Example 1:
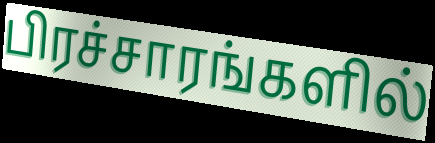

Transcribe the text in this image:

பிரச்சாரங்களில்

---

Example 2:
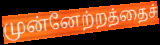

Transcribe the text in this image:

முன்னேற்றத்தைச்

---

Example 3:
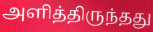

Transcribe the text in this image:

அளித்திருந்தது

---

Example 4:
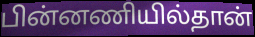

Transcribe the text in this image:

பின்னணியில்தான்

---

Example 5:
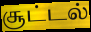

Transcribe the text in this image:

சூட்டல்